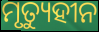
ମୃତ୍ୟୁହୀନ